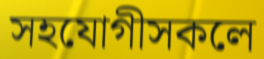
সহযোগীসকলে